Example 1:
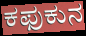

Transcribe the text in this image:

ಕಫುಕುನ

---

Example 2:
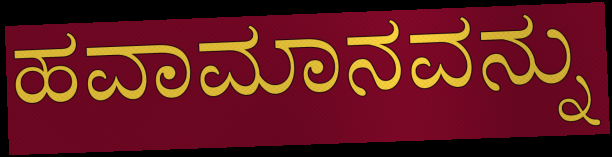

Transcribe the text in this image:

ಹವಾಮಾನವನ್ನು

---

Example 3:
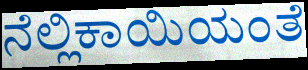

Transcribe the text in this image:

ನೆಲ್ಲಿಕಾಯಿಯಂತೆ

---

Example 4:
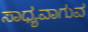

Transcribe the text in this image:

ಸಾಧ್ಯವಾಗುವ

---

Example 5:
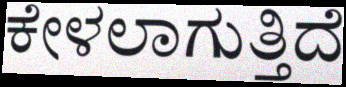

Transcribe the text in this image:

ಕೇಳಲಾಗುತ್ತಿದೆ